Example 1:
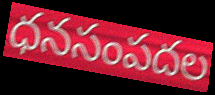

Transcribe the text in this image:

ధనసంపదల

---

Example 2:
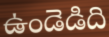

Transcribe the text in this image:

ఉండెడిది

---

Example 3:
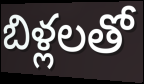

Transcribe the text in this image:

బిళ్లలతో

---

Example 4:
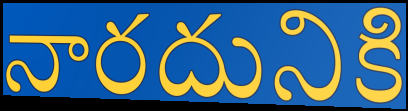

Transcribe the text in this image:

నారదునికి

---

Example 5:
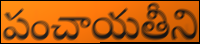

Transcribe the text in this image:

పంచాయతీని